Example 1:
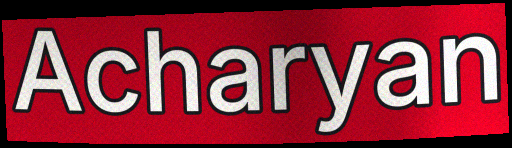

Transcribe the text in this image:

Acharyan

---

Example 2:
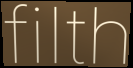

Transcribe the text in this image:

filth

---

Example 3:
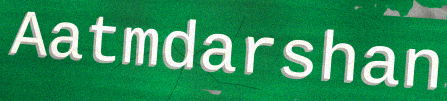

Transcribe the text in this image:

Aatmdarshan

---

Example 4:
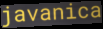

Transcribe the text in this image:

javanica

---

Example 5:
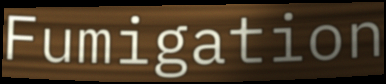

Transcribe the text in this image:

Fumigation